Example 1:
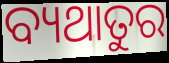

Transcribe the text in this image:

ବ୍ୟଥାତୁର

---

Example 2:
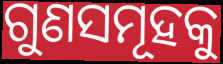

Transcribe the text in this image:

ଗୁଣସମୂହକୁ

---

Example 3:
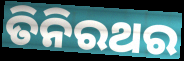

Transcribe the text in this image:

ତିନିରଥର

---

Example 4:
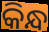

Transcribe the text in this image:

କିନ୍ଧ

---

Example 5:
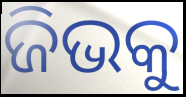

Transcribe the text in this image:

ଜିଭକୁ